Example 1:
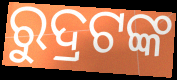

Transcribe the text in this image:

ରୁଦ୍ରଟଙ୍କ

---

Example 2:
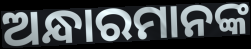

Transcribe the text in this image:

ଅନ୍ଧାରମାନଙ୍କ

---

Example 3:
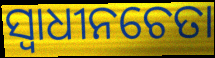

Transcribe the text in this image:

ସ୍ବାଧୀନଚେତା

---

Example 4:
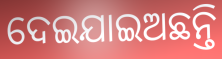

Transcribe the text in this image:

ଦେଇଯାଇଅଛନ୍ତି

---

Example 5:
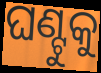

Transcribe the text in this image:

ଘଣ୍ଟୁକୁ